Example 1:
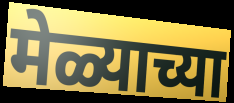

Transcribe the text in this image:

मेळ्याच्या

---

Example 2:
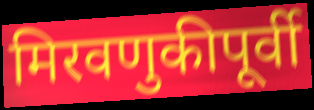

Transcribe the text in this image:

मिरवणुकीपूर्वी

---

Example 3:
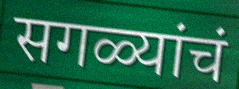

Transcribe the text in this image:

सगळ्यांचं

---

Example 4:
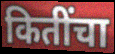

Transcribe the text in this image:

कितींचा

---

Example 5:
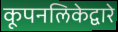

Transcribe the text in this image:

कूपनलिकेद्वारे